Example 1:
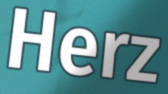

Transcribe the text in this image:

Herz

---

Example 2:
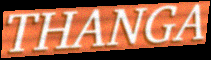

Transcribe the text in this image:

THANGA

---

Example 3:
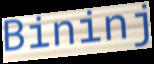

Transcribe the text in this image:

Bininj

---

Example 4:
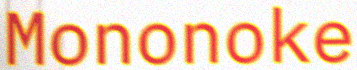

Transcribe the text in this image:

Mononoke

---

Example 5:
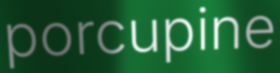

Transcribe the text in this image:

porcupine